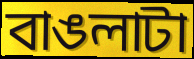
বাঙলাটা